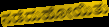
ನಡೆದುಹೋಯಿತು